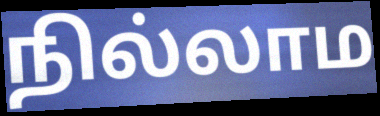
நில்லாம